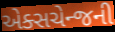
એક્સચેન્જની